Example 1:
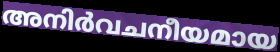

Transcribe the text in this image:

അനിർവചനീയമായ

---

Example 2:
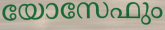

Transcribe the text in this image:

യോസേഫും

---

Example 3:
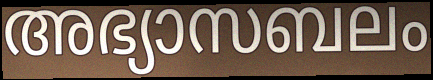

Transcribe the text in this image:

അഭ്യാസബലം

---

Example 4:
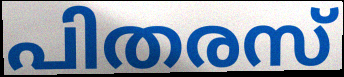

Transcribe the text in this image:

പിതരസ്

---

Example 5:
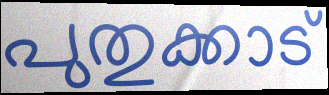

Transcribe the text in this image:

പുതുക്കാട്